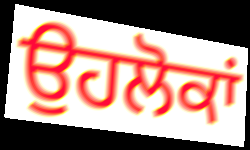
ਉਹਲੋਕਾਂ